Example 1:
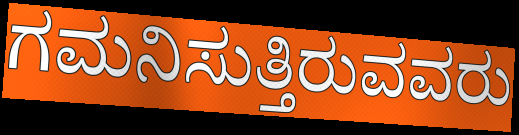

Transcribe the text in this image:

ಗಮನಿಸುತ್ತಿರುವವರು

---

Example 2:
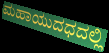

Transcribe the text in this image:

ಮಹಾಯುದಧದಲ್ಲಿ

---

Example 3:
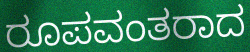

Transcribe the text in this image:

ರೂಪವಂತರಾದ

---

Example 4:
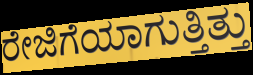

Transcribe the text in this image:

ರೇಜಿಗೆಯಾಗುತ್ತಿತ್ತು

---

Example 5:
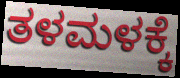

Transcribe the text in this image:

ತಳಮಳಕ್ಕೆ